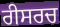
ਰੀਸਰਚ